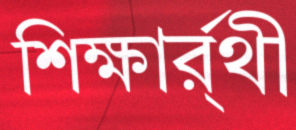
শিক্ষার্র্থী